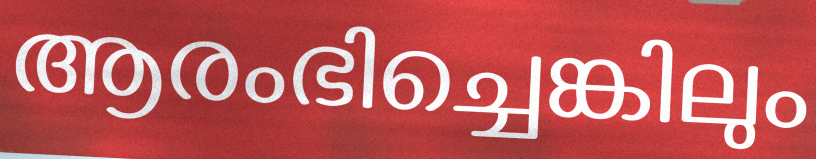
ആരംഭിച്ചെങ്കിലും